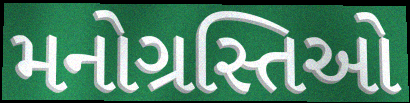
મનોગ્રસ્તિઓ